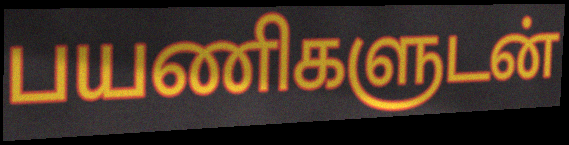
பயணிகளுடன்